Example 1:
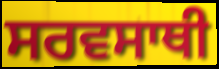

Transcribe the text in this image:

ਸਰਵਸਾਥੀ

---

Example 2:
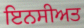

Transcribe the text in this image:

ਇਨਸੀਅਤ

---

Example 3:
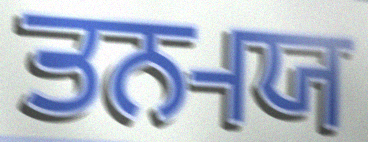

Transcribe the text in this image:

ਤਨ੍ਮਯ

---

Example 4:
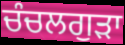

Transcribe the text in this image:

ਚੰਚਲਗੁੜਾ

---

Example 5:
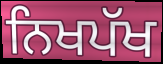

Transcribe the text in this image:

ਨਿਖਪੱਖ